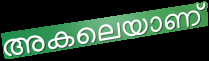
അകലെയാണ്